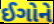
ઈગોને